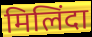
मिलिंदा